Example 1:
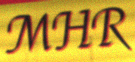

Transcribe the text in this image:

MHR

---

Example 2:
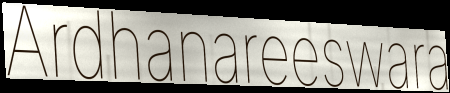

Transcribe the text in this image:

Ardhanareeswara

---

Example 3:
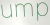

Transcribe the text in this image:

ump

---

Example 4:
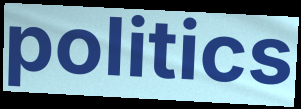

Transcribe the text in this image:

politics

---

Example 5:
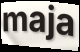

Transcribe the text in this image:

maja